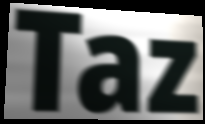
Taz